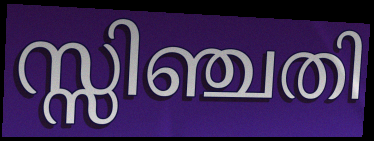
സ്സിഞ്ചതി